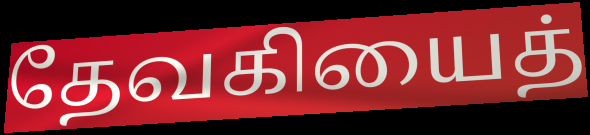
தேவகியைத்